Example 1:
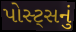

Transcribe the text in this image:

પોસ્ટ્સનું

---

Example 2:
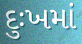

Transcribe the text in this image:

દુઃખમાં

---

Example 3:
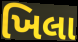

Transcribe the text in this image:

ખિલા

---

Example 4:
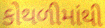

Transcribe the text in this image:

કોથળીમાંથી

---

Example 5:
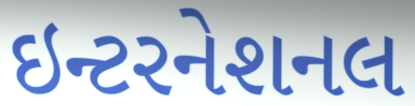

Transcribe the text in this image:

ઇન્ટરનેશનલ